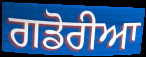
ਗਡੋਰੀਆ